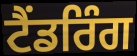
ਟੈਂਡਰਿੰਗ